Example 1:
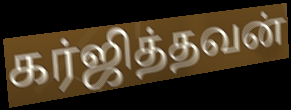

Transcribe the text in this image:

கர்ஜித்தவன்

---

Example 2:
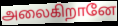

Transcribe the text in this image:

அலைகிறானே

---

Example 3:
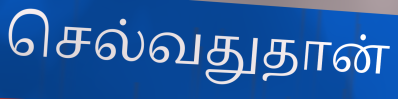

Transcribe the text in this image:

செல்வதுதான்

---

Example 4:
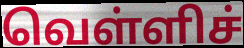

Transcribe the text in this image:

வெள்ளிச்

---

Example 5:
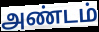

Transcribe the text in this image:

அண்டம்